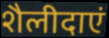
शैलीदाएं